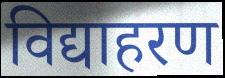
विद्याहरण